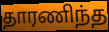
தாரணிந்த